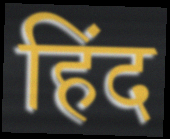
हिंद